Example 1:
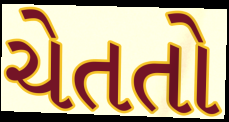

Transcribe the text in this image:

ચેતતો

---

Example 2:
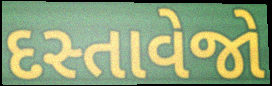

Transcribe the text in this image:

દસ્તાવેજો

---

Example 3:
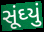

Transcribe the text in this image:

સૂંઘ્યું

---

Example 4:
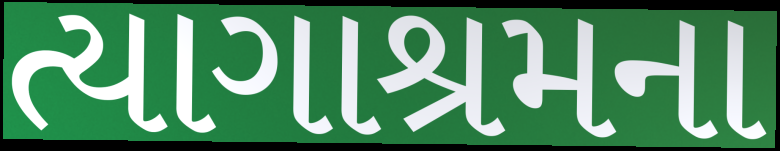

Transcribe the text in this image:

ત્યાગાશ્રમના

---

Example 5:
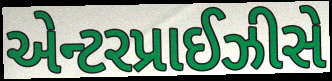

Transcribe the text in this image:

એન્ટરપ્રાઈઝીસે